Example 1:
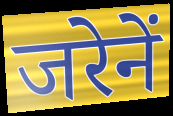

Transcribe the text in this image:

जरेनें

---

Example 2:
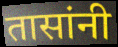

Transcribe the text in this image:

तासांनी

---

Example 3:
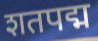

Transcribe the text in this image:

शतपद्म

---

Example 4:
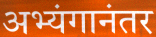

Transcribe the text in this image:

अभ्यंगानंतर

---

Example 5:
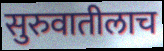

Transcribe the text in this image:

सुरुवातीलाच